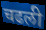
चढली